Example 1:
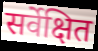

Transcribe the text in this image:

सर्वेक्षित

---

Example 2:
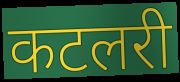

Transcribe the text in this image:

कटलरी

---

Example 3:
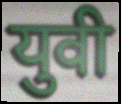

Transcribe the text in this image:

युवी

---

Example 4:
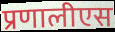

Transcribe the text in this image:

प्रणालीएस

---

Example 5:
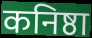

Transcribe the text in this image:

कनिष्ठा